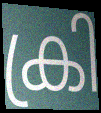
ക്രി